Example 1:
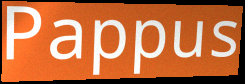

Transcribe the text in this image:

Pappus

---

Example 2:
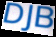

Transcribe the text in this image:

DJB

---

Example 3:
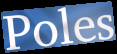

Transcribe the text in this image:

Poles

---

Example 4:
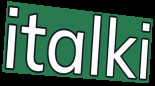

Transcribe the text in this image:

italki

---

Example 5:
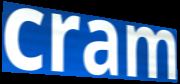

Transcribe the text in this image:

cram